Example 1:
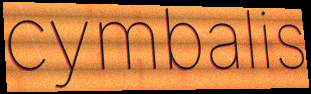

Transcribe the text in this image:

cymbalis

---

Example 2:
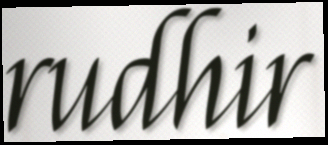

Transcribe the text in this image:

rudhir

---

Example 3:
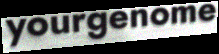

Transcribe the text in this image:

yourgenome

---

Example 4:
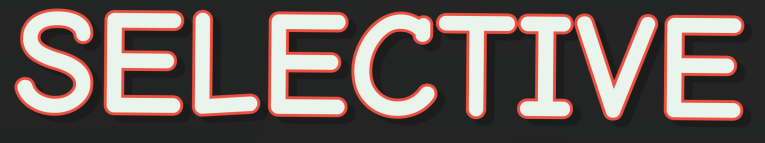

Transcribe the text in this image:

SELECTIVE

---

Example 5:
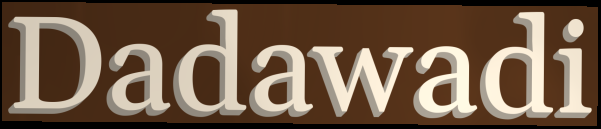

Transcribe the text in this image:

Dadawadi